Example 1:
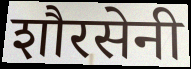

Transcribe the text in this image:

शौरसेनी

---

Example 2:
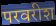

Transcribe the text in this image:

परवरीश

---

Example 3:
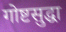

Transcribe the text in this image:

गोष्टसुद्धा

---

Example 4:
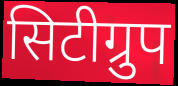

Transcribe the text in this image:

सिटीग्रुप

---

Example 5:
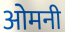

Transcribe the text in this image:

ओमनी